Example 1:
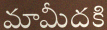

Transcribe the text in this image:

మామీదకి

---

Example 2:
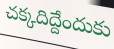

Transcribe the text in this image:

చక్కదిద్దేందుకు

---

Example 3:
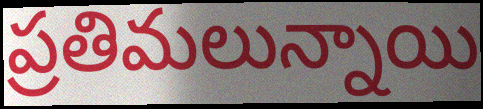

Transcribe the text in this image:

ప్రతిమలున్నాయి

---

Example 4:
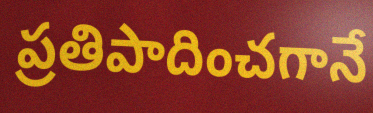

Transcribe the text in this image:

ప్రతిపాదించగానే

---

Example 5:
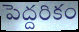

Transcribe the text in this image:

పెద్దరికం